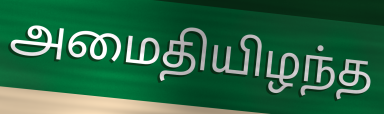
அமைதியிழந்த